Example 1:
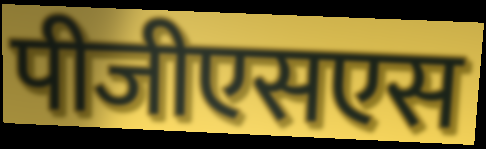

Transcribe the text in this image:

पीजीएसएस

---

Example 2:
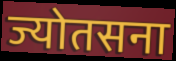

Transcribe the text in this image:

ज्योतसना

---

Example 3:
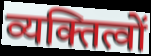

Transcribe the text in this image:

व्यक्तित्वों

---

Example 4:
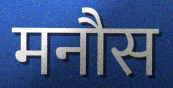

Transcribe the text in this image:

मनौस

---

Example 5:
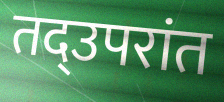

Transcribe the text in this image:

तद्उपरांत